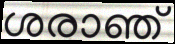
ശരാഞ്